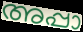
അപ്പാ